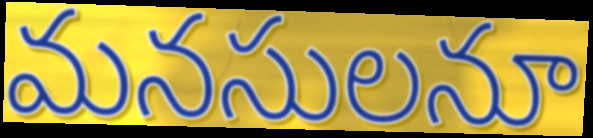
మనసులనూ